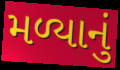
મળ્યાનું